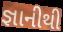
જ્ઞાનીથી